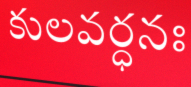
కులవర్ధనః